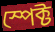
স্পেক্ট